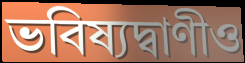
ভবিষ্যদ্বাণীও